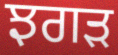
ਝਗੜ